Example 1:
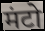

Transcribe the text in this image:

मंटो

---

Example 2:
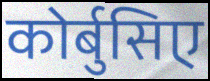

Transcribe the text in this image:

कोर्बुसिए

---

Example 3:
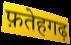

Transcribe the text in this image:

फ़तेहगढ़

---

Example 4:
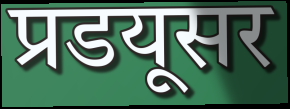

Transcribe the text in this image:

प्रडयूसर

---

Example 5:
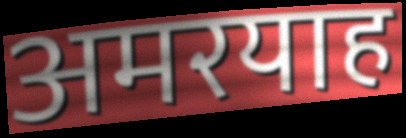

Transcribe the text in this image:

अमरयाह